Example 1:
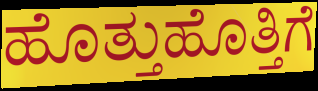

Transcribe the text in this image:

ಹೊತ್ತುಹೊತ್ತಿಗೆ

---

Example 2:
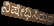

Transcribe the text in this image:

ನಿಷೇಧಿಸಿರುವ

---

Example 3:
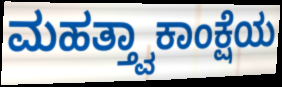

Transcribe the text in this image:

ಮಹತ್ತ್ವಾಕಾಂಕ್ಷೆಯ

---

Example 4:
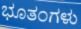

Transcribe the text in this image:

ಭೂತಂಗಳು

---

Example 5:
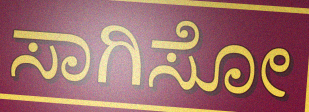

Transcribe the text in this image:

ಸಾಗಿಸೋ